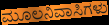
ಮೂಲನಿವಾಸಿಗಳು